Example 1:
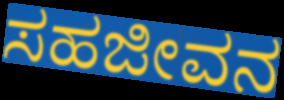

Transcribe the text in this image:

ಸಹಜೀವನ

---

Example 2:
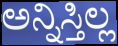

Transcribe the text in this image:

ಅನ್ನಿಸ್ತಿಲ್ಲ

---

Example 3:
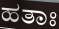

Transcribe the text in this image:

ಹತಾಃ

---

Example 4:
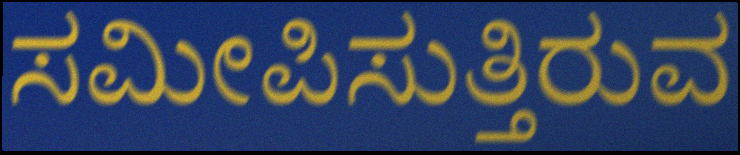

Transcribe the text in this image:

ಸಮೀಪಿಸುತ್ತಿರುವ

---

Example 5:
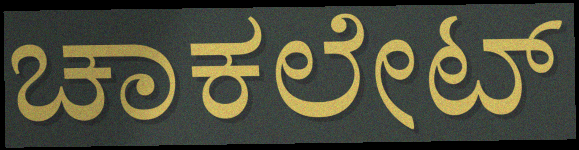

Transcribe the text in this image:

ಚಾಕಲೇಟ್